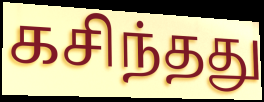
கசிந்தது